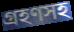
গ্রহণসহ